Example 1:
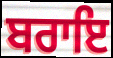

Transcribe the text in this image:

ਬਰਾਇ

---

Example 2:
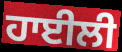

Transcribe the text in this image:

ਹਾਈਲੀ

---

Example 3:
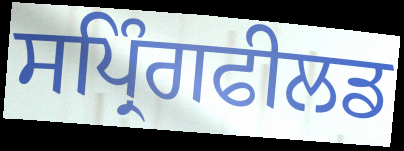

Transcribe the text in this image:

ਸਪ੍ਰਿੰਗਫੀਲਡ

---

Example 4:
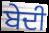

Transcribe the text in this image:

ਬੇਦੀ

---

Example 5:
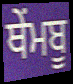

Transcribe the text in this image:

ਥੇਂਮਬੂ